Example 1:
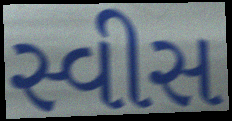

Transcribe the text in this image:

સ્વીસ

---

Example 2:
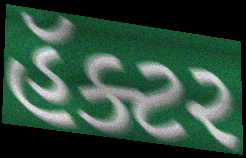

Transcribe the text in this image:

હૅક્ટર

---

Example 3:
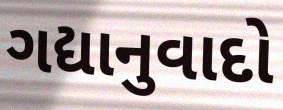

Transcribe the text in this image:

ગદ્યાનુવાદો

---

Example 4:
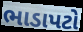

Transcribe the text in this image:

ભાડાપટો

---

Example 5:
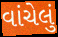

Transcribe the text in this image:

વાંચેલું